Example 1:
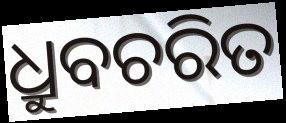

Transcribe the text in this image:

ଧ୍ରୁବଚରିତ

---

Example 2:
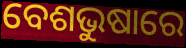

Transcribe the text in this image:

ବେଶଭୁଷାରେ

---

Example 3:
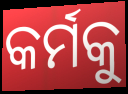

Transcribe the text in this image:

କର୍ମକୁ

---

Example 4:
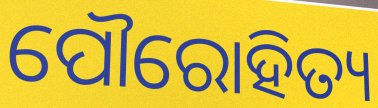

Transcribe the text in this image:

ପୌରୋହିତ୍ୟ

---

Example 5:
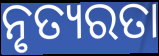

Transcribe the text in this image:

ନୃତ୍ୟରତା